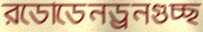
রডোডেনড্রনগুচ্ছ